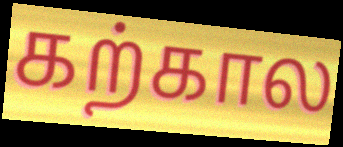
கற்கால